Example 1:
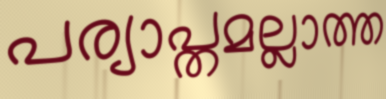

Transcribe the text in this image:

പര്യാപ്തമല്ലാത്ത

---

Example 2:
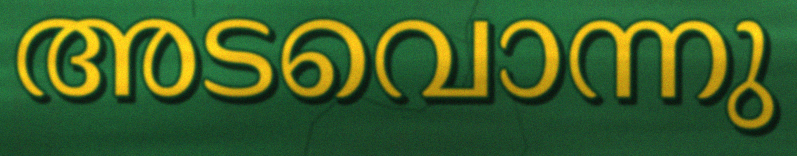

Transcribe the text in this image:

അടവൊന്നു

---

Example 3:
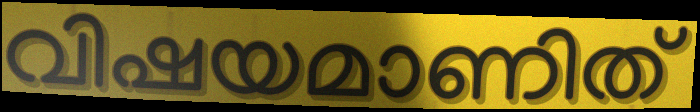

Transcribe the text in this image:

വിഷയമാണിത്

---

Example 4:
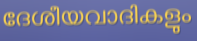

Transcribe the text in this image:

ദേശീയവാദികളും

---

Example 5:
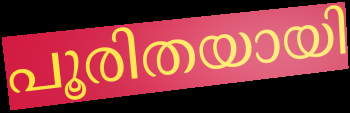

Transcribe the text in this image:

പൂരിതയായി